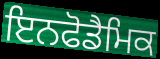
ਇਨਫੋਡੈਮਿਕ